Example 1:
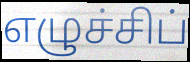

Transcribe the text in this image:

எழுச்சிப்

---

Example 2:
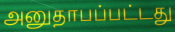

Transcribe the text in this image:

அனுதாபப்பட்டது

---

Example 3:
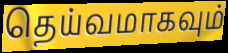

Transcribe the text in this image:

தெய்வமாகவும்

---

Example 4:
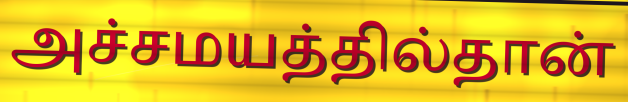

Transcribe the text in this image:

அச்சமயத்தில்தான்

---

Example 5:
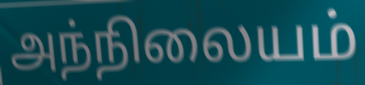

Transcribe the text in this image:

அந்நிலையம்